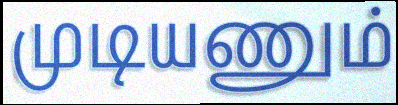
முடியணும்